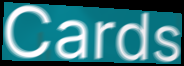
Cards